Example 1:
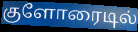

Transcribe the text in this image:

குளோரைடில்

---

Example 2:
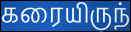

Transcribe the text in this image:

கரையிருந்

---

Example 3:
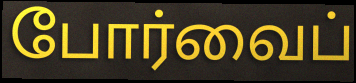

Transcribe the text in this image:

போர்வைப்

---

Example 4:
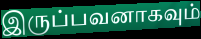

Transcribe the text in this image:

இருப்பவனாகவும்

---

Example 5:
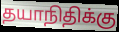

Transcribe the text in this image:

தயாநிதிக்கு